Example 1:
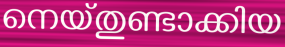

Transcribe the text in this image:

നെയ്തുണ്ടാക്കിയ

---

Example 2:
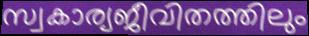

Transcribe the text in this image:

സ്വകാര്യജീവിതത്തിലും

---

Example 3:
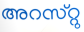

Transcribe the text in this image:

അറസ്‌റ്റു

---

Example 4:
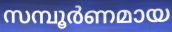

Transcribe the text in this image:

സമ്പൂർണമായ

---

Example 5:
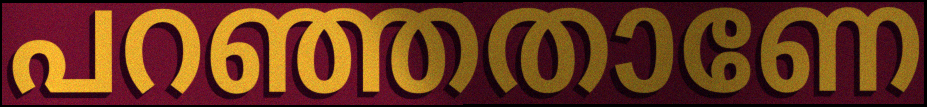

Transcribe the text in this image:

പറഞ്ഞതാണേ